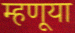
म्हणूया